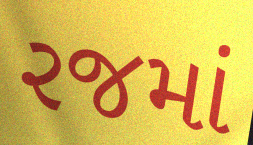
રજમાં